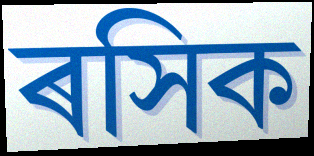
ৰসিক